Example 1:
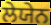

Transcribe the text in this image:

ਲੇਯੇਨ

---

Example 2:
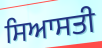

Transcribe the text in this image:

ਸਿਆਸਤੀ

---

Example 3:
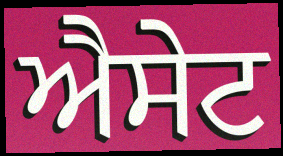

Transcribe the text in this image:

ਐਸੇਟ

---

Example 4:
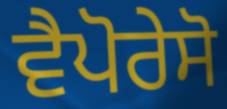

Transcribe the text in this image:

ਵੈਪੋਰੇਸੋ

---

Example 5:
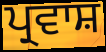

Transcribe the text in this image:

ਪ੍ਰਵਾਸ਼